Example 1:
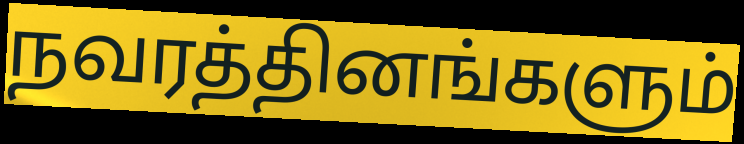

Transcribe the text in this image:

நவரத்தினங்களும்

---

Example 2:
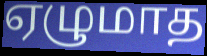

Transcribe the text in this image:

ஏழுமாத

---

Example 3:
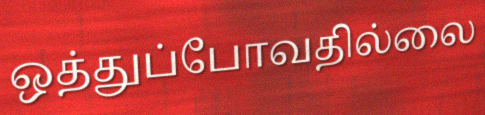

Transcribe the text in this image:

ஒத்துப்போவதில்லை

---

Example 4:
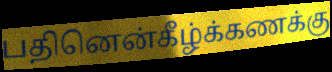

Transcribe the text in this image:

பதினென்கீழ்க்கணக்கு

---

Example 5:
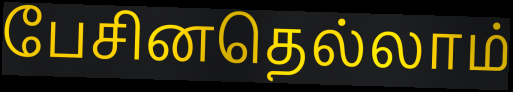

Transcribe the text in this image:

பேசினதெல்லாம்